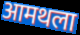
आमथला